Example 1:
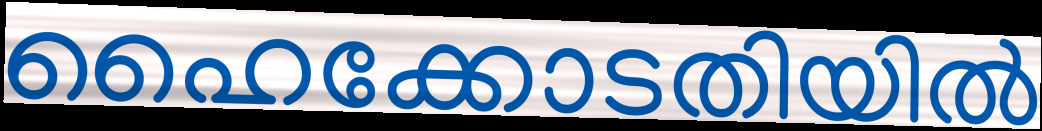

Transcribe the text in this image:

ഹൈക്കോടതിയിൽ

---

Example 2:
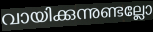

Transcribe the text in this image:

വായിക്കുന്നുണ്ടല്ലോ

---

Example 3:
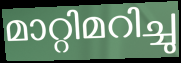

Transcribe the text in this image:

മാറ്റിമറിച്ചു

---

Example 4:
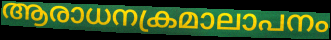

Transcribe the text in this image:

ആരാധനക്രമാലാപനം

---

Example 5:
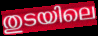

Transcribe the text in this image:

തുടയിലെ